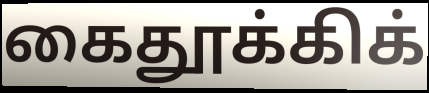
கைதூக்கிக்